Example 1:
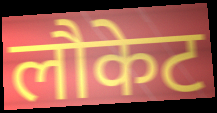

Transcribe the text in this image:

लौकेट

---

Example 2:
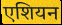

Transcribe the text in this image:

एशियन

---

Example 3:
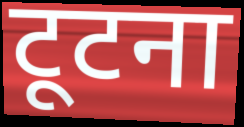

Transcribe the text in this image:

टूटना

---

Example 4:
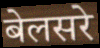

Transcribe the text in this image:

बेलसरे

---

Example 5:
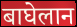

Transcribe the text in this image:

बाघेलान